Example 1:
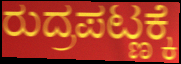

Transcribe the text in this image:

ರುದ್ರಪಟ್ಣಕ್ಕೆ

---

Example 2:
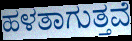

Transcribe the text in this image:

ಹಳತಾಗುತ್ತವೆ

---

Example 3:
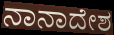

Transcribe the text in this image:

ನಾನಾದೇಶ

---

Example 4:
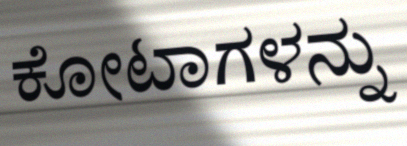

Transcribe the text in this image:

ಕೋಟಾಗಳನ್ನು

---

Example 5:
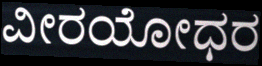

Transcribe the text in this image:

ವೀರಯೋಧರ